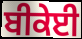
ਬੀਕੇਈ